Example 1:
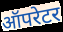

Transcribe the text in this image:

ऑपरेटर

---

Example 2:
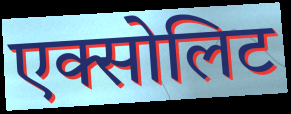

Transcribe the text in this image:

एक्सोलिट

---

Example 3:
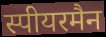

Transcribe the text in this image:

स्पीयरमैन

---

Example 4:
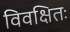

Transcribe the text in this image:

विवक्षितः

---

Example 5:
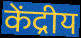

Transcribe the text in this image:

केंद्रीय